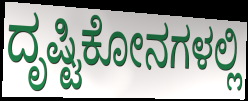
ದೃಷ್ಟಿಕೋನಗಳಲ್ಲಿ